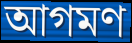
আগমণ